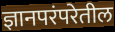
ज्ञानपरंपरेतील